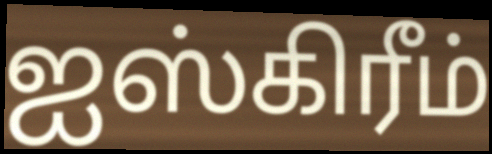
ஐஸ்கிரீம்